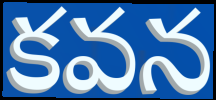
కవన